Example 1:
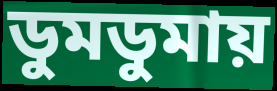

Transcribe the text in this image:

ডুমডুমায়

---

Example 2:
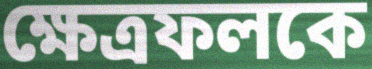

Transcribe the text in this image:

ক্ষেত্রফলকে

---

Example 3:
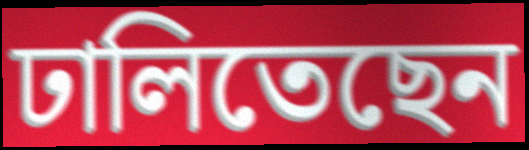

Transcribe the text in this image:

ঢালিতেছেন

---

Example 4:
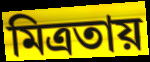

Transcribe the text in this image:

মিত্রতায়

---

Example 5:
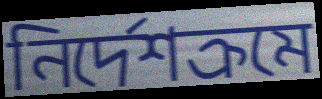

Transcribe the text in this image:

নির্দেশক্রমে